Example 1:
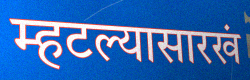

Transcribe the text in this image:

म्हटल्यासारखं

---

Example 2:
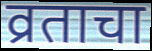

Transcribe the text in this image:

व्रताचा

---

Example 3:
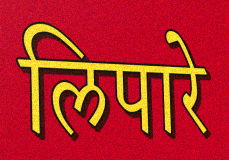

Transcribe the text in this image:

लिपारे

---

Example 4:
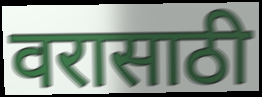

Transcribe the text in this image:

वरासाठी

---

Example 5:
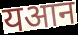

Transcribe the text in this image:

यआन